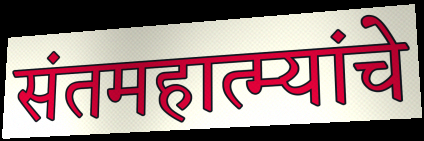
संतमहात्म्यांचे